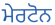
ਮੇਰਟੋਨ